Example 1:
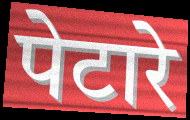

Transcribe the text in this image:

पेटारे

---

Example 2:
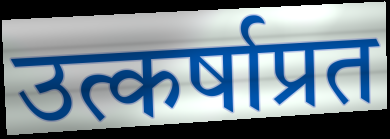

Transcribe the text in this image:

उत्कर्षाप्रत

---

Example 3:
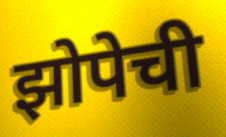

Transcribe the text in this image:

झोपेची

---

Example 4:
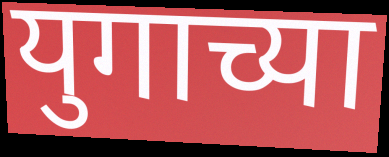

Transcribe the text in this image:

युगाच्या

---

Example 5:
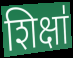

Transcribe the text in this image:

शिक्षा॑